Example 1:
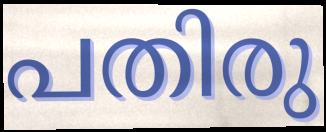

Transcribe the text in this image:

പതിരു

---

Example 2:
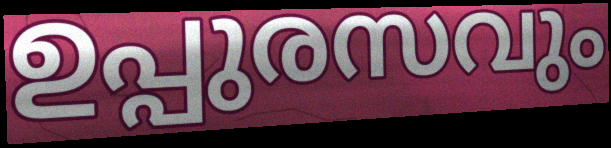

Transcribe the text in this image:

ഉപ്പുരസവും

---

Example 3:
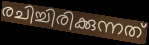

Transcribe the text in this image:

രചിച്ചിരിക്കുന്നത്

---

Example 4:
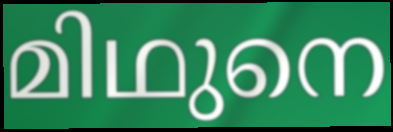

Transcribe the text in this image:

മിഥുനെ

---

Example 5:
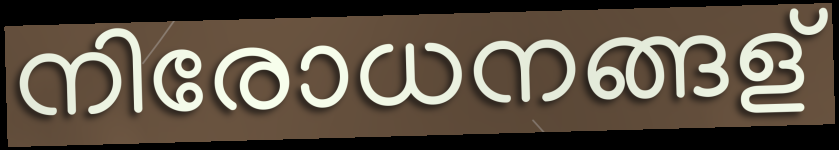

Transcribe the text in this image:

നിരോധനങ്ങള്